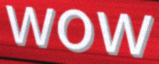
wow